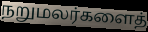
நறுமலர்களைத்